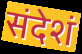
संदेशं